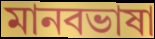
মানবভাষা